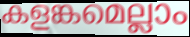
കളങ്കമെല്ലാം